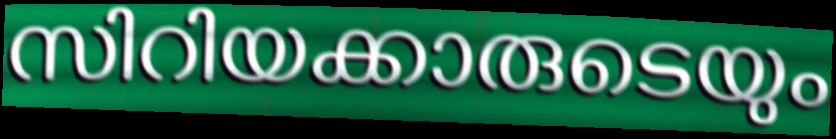
സിറിയക്കാരുടെയും